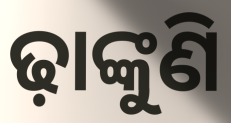
ଢ଼ାଙ୍କୁଣି